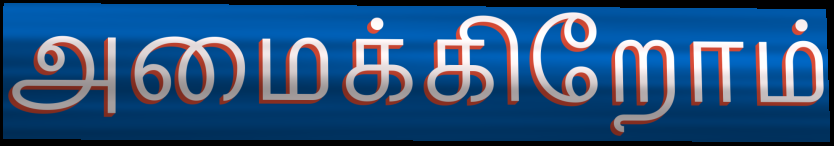
அமைக்கிறோம்